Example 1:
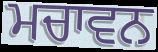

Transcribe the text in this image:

ਮਚਾਵਨ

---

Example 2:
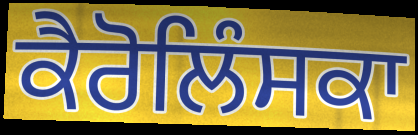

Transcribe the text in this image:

ਕੈਰੋਲਿੰਸਕਾ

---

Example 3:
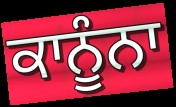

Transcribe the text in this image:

ਕਾਨੂੰਨਾ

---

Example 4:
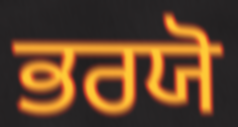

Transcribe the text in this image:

ਭਰਯੋ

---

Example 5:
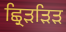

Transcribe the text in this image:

ਛ੍ਰਿੜੜਿੜ